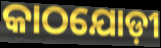
କାଠଯୋଡ଼ୀ